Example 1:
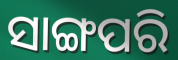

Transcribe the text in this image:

ସାଙ୍ଗପରି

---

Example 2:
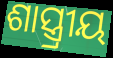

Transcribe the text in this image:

ଶାସ୍ତ୍ର୍ରୀୟ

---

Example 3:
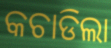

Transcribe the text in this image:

କଚାଡିଲା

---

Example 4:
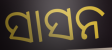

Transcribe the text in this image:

ସାସନ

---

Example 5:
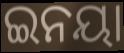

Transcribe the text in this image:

ଇନୟା